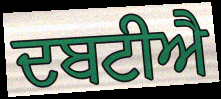
ਦਬਟੀਐ